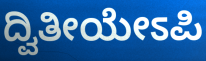
ದ್ವಿತೀಯೇಽಪಿ